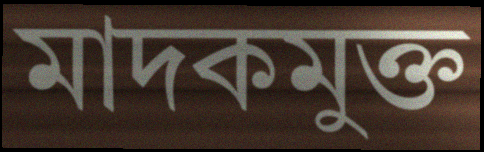
মাদকমুক্ত